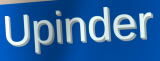
Upinder